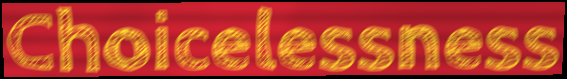
Choicelessness